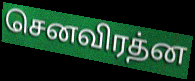
செனவிரத்ன